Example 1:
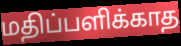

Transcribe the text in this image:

மதிப்பளிக்காத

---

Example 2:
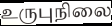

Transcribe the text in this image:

உருபுநிலை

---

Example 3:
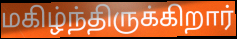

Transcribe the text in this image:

மகிழ்ந்திருக்கிறார்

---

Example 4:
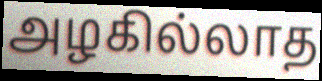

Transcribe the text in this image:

அழகில்லாத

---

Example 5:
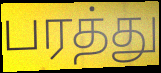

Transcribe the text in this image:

பரத்து